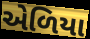
એળિયા